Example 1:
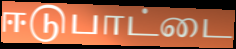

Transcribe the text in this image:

ஈடுபாட்டை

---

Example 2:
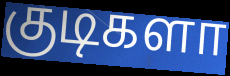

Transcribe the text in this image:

குடிகளா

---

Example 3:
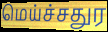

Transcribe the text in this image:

மெய்ச்சதுர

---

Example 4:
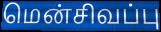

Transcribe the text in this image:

மென்சிவப்பு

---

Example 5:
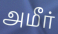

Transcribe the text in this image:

அமீர்